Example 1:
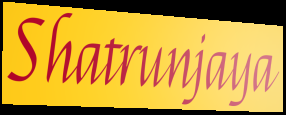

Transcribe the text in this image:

Shatrunjaya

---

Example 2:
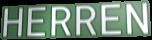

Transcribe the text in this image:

HERREN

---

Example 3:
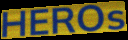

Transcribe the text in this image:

HEROs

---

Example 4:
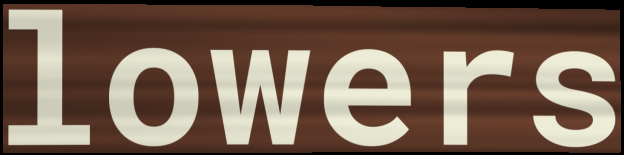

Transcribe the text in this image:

lowers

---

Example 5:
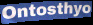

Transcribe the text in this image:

Ontosthyo